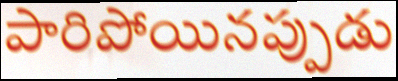
పారిపోయినప్పుడు